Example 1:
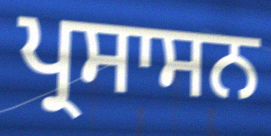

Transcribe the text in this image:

ਪ੍ਰਸਾਸਨ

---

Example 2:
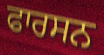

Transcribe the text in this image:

ਫਾਰਸਨ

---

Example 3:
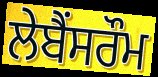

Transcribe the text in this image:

ਲੇਬੈਂਸਰੌਮ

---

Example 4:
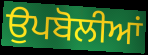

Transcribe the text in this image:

ਉਪਬੋਲੀਆਂ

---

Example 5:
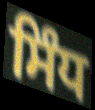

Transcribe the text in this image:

ਸਿੰਧ